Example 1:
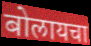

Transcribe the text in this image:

बोलायचा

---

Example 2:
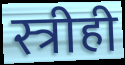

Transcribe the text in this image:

स्त्रीही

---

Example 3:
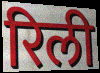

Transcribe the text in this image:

रिली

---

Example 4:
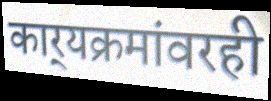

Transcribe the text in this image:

कार्यक्रमांवरही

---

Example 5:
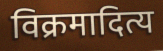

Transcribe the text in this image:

विक्रमादित्य